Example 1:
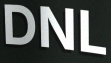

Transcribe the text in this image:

DNL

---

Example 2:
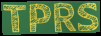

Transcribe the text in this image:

TPRS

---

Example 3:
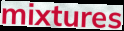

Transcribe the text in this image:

mixtures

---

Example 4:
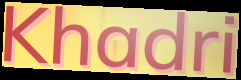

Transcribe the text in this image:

Khadri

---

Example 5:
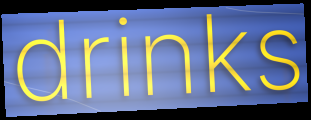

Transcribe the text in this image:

drinks